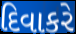
દિવાકરે